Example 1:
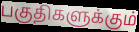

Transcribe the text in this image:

பகுதிகளுக்கும்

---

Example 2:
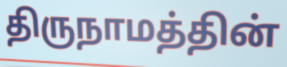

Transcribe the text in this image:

திருநாமத்தின்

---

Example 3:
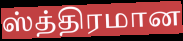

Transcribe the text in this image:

ஸ்த்திரமான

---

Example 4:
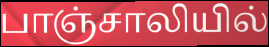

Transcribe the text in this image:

பாஞ்சாலியில்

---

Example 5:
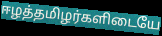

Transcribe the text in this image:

ஈழத்தமிழர்களிடையே